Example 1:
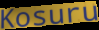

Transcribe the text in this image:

Kosuru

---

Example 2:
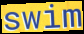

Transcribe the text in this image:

swim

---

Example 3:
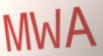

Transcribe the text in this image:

MWA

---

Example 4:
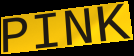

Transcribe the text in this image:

PINK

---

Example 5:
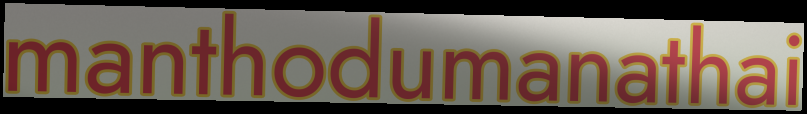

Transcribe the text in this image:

manthodumanathai